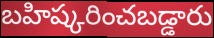
బహిష్కరించబడ్డారు